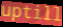
uptill